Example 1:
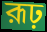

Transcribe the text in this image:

রূঢ়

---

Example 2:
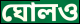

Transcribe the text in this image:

ঘোলও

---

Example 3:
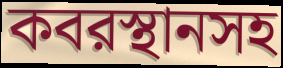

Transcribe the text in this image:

কবরস্থানসহ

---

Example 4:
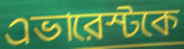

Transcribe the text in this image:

এভারেস্টকে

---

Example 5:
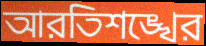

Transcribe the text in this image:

আরতিশঙ্খের